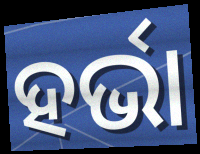
ହର୍ଭା